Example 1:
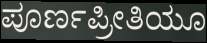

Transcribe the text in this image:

ಪೂರ್ಣಪ್ರೀತಿಯೂ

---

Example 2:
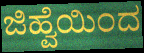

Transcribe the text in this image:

ಜಿಹ್ವೆಯಿಂದ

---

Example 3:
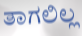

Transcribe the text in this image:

ತಾಗಲಿಲ್ಲ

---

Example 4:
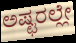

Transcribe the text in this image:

ಅಷ್ಟರಲ್ಲೇ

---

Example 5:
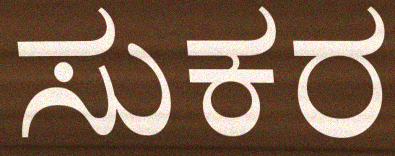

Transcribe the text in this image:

ಸುಕರ